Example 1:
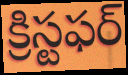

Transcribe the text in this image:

క్రిస్టఫర్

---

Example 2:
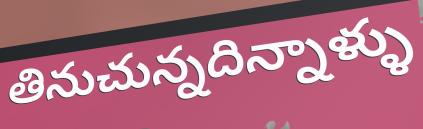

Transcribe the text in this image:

తినుచున్నదిన్నాళ్ళు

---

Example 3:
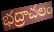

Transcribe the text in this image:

భద్రాచలం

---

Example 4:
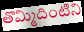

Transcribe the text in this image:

తొమ్మిదింటిని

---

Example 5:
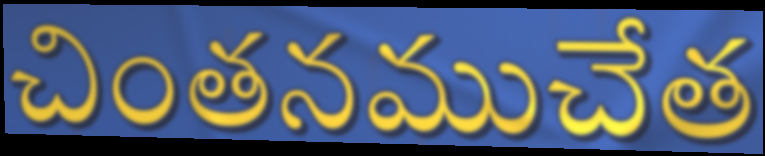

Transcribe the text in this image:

చింతనముచేత